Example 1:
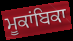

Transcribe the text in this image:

ਮੂਕਾਂਬਿਕਾ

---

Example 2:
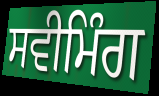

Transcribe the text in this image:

ਸਵੀਮਿੰਗ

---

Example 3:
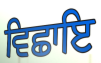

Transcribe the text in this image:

ਵਿਛਾਇ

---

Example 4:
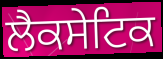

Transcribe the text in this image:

ਲੈਕਸੇਟਿਕ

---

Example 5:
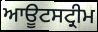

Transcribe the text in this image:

ਆਊਟਸਟ੍ਰੀਮ